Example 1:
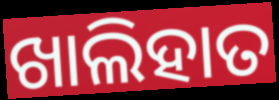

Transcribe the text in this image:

ଖାଲିହାତ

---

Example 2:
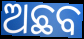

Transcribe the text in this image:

ଅଛବ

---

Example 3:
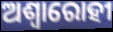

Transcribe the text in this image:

ଅଶ୍ଵାରୋହୀ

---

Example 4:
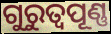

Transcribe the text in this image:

ଗୁରୁତ୍ବପୂଣ୍ଣ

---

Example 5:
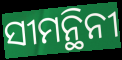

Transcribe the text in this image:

ସୀମନ୍ଥିନୀ